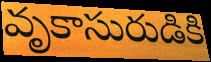
వృకాసురుడికి